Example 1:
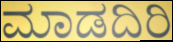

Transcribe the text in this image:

ಮಾಡದಿರಿ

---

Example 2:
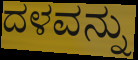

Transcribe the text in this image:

ದಳವನ್ನು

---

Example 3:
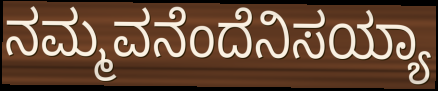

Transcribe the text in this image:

ನಮ್ಮವನೆಂದೆನಿಸಯ್ಯಾ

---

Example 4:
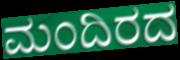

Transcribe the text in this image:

ಮಂದಿರದ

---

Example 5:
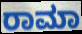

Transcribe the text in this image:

ರಾಮಾ